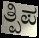
ತ್ಪಿಪ